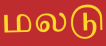
மலடு